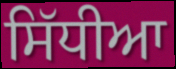
ਸਿੱਧੀਆ